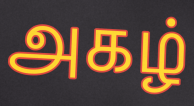
அகழ்